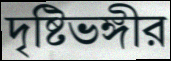
দৃষ্টিভঙ্গীর